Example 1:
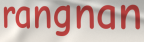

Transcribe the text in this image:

rangnan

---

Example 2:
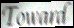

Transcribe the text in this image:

Toward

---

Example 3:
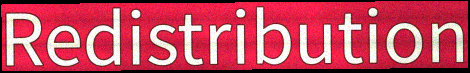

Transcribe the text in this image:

Redistribution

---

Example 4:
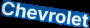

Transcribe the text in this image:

Chevrolet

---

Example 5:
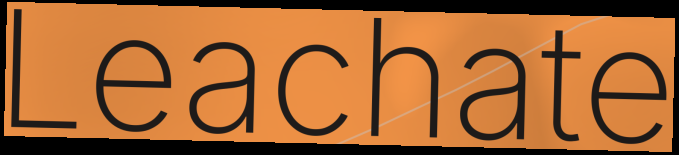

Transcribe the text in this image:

Leachate